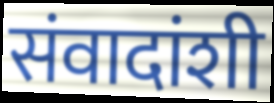
संवादांशी